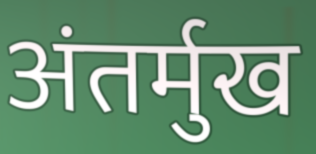
अंतर्मुख